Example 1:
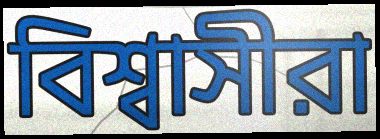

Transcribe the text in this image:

বিশ্বাসীরা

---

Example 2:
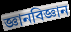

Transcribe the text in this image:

জ্ঞানবিজ্ঞান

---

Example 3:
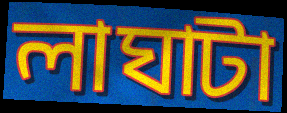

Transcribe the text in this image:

লাঘাটা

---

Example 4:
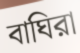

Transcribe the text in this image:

বাঘিরা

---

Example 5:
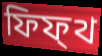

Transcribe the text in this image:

ফিফ্থ